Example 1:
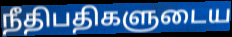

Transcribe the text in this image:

நீதிபதிகளுடைய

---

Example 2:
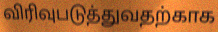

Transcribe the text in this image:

விரிவுபடுத்துவதற்காக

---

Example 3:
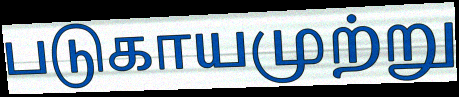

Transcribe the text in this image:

படுகாயமுற்று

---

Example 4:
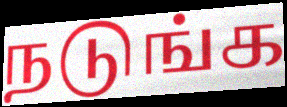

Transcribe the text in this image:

நடுங்க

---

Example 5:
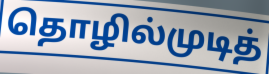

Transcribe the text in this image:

தொழில்முடித்